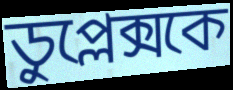
ডুপ্লেক্সকে